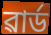
ৱাৰ্ড